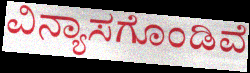
ವಿನ್ಯಾಸಗೊಂಡಿವೆ